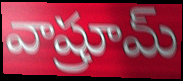
వాష్రూమ్